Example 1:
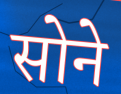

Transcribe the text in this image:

सोने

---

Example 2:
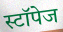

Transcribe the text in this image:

स्टॉपेज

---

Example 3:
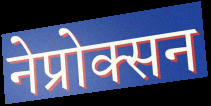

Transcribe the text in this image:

नेप्रोक्सन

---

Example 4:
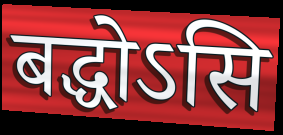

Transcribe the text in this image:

बद्धोऽसि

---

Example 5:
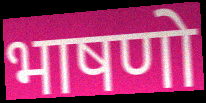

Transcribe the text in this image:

भाषणो